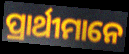
ପ୍ରାର୍ଥୀମାନେ